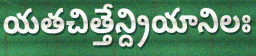
యతచిత్తేన్ద్రియానిలః